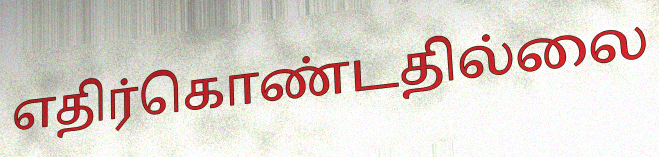
எதிர்கொண்டதில்லை